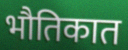
भौतिकात